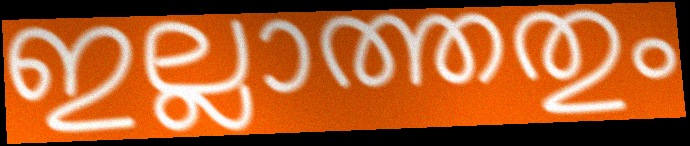
ഇല്ലാത്തതും